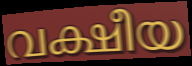
വക്ഷീയ